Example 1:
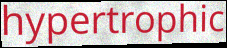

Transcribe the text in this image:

hypertrophic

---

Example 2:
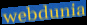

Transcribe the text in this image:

webdunia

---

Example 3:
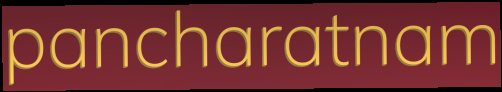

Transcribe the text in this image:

pancharatnam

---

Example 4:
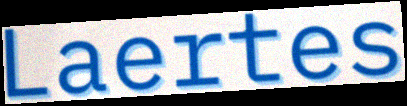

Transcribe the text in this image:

Laertes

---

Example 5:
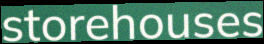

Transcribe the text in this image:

storehouses